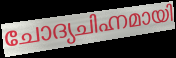
ചോദ്യചിഹ്നമായി